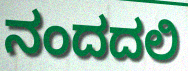
ನಂದದಲಿ